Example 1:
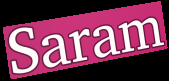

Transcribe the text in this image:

Saram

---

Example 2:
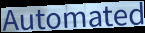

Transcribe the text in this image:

Automated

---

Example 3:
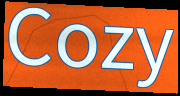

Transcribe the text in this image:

Cozy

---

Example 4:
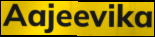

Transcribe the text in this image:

Aajeevika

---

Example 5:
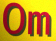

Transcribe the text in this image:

Om